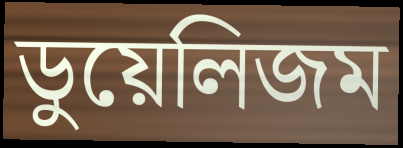
ডুয়েলিজম